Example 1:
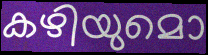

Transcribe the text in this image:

കഴിയുമൊ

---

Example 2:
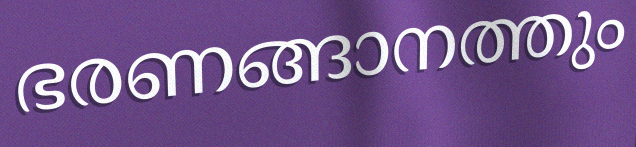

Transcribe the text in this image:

ഭരണങ്ങാനത്തും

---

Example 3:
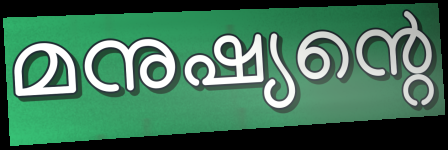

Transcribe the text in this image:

മനുഷ്യന്റെ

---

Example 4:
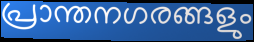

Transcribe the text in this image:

പ്രാന്തനഗരങ്ങളും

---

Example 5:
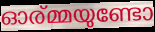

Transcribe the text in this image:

ഓര്മ്മയുണ്ടോ